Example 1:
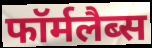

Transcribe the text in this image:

फॉर्मलैब्स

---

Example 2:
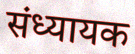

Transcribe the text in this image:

संध्यायक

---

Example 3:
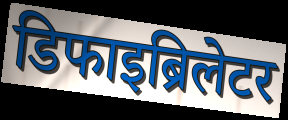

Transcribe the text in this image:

डिफाइब्रिलेटर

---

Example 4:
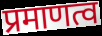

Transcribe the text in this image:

प्रमाणत्व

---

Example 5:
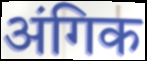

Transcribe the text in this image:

अंगिक